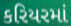
કરિયરમાં